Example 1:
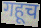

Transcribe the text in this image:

गहूच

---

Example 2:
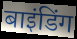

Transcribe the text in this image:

बाइंडिंग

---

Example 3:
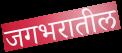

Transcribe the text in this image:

जगभरातील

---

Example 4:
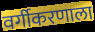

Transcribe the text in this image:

वर्गीकरणाला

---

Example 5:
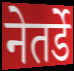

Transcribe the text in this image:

नेतर्डे